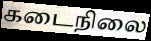
கடைநிலை